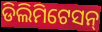
ଡିଲିମିଟେସନ୍